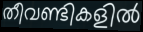
തീവണ്ടികളിൽ